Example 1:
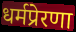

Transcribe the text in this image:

धर्मप्रेरणा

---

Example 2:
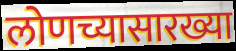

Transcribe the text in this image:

लोणच्यासारख्या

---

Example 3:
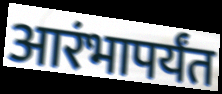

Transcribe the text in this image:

आरंभापर्यंत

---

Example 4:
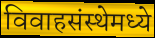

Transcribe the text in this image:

विवाहसंस्थेमध्ये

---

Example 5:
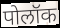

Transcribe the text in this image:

पोलॉक